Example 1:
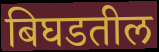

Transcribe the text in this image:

बिघडतील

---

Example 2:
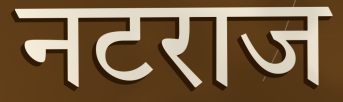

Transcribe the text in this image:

नटराज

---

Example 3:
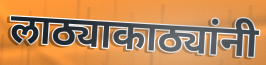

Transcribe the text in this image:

लाठ्याकाठ्यांनी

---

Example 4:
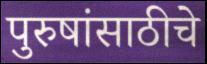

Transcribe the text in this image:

पुरुषांसाठीचे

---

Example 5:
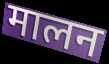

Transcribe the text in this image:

मालन